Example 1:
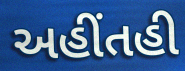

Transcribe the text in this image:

અહીંતહી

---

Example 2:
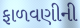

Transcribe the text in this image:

ફાળવણીની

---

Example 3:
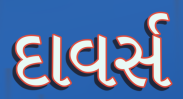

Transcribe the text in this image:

દાવર્સ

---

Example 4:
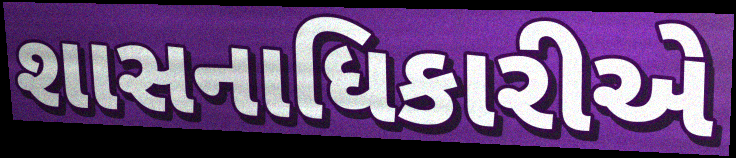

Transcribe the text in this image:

શાસનાધિકારીએ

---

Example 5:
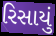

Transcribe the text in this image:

રિસાયું